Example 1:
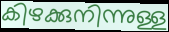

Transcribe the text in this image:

കിഴക്കുനിന്നുള്ള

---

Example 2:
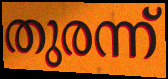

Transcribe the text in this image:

തുരന്ന്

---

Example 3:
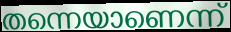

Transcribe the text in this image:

തന്നെയാണെന്ന്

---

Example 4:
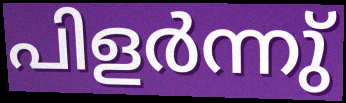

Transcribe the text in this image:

പിളർന്നു്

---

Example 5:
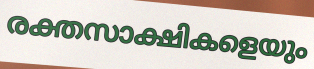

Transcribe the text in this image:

രക്തസാക്ഷികളെയും